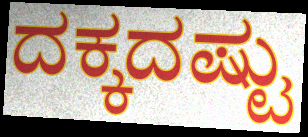
ದಕ್ಕದಷ್ಟು